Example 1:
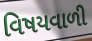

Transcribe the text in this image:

વિષયવાળી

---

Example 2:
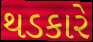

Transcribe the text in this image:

થડકારે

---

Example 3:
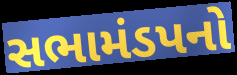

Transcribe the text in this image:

સભામંડપનો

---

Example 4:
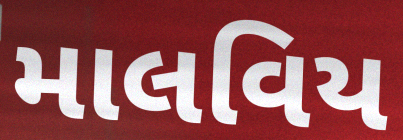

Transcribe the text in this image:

માલવિય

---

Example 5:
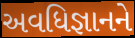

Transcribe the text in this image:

અવધિજ્ઞાનને